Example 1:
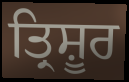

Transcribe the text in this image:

ਤ੍ਰਿਸ਼ੂਰ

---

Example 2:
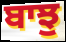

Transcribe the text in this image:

ਬਾਝੁ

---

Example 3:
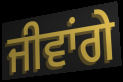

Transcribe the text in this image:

ਜੀਵਾਂਗੇ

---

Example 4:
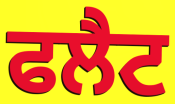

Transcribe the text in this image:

ਫਲੈਟ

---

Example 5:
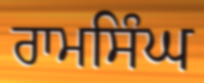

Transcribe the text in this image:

ਰਾਮਸਿੰਘ